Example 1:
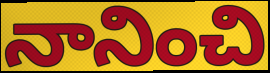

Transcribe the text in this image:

నానించి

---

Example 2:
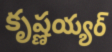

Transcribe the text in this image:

కృష్ణయ్యర్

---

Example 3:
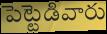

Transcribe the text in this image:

పెట్టెడివారు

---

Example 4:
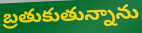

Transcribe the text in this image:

బ్రతుకుతున్నాను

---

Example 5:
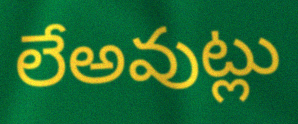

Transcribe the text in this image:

లేఅవుట్లు